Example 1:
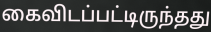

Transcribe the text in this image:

கைவிடப்பட்டிருந்தது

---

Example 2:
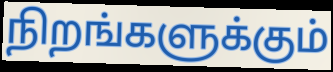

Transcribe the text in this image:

நிறங்களுக்கும்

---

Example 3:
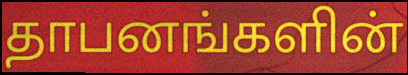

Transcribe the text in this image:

தாபனங்களின்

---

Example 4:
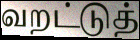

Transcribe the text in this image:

வறட்டுத்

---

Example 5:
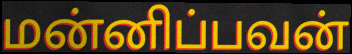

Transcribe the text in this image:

மன்னிப்பவன்